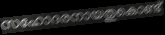
സഹോദരനായതുകൊണ്ട്